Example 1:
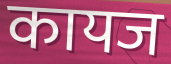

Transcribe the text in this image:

कायज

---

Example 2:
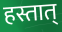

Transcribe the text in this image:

हस्तात्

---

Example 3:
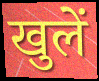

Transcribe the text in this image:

खुलें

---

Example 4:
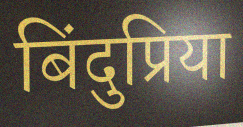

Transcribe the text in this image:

बिंदुप्रिया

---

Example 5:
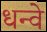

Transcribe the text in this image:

धन्वे